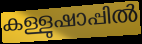
കള്ളുഷാപ്പിൽ